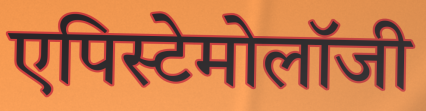
एपिस्टेमोलॉजी